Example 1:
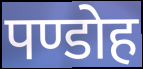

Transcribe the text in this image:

पण्डोह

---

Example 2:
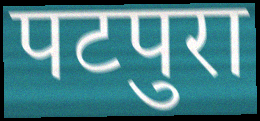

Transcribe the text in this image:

पटपुरा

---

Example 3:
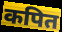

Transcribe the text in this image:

कपित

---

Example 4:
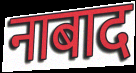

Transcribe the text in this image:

नाबाद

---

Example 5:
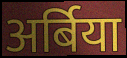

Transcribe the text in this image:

अर्बिया